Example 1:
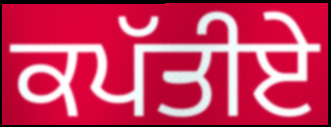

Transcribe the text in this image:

ਕਪੱਤੀਏ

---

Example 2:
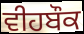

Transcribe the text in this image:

ਵੀਹਬੌਕ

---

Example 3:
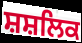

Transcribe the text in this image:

ਸ਼ਸ਼ਲਿਕ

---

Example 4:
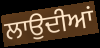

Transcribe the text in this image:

ਲਾਉਦੀਆਂ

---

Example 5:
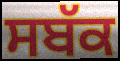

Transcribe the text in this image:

ਸਬੱਕ